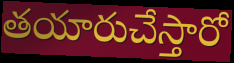
తయారుచేస్తారో